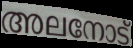
അലനോട്